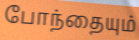
போந்தையும்